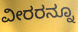
ವೀರರನ್ನೂ